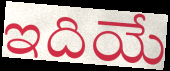
ఇదియే